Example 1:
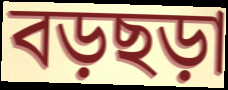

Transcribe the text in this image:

বড়ছড়া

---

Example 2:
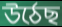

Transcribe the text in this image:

উঠেছ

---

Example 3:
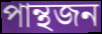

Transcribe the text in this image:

পান্থজন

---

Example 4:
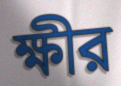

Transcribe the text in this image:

ক্ষীর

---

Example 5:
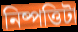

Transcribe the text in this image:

নিষ্পত্তিটা